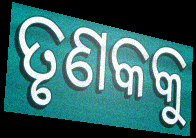
ତୃଣକକୁ